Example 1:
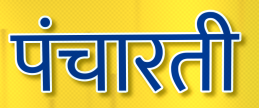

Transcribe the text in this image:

पंचारती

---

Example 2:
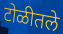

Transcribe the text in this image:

टोळीतले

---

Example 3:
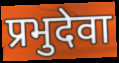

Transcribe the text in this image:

प्रभुदेवा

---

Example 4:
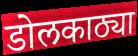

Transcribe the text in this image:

डोलकाठ्या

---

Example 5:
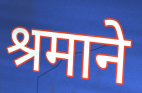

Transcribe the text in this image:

श्रमाने